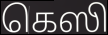
கெஸி